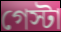
গেস্টা